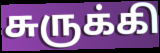
சுருக்கி